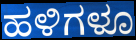
ಹಳಿಗಳೂ